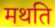
मथति